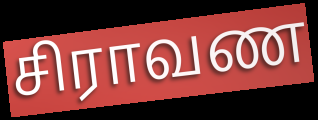
சிராவண